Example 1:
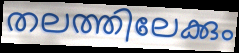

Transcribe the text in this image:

തലത്തിലേക്കും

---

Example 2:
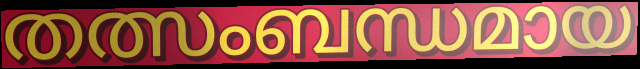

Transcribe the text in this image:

തത്സംബന്ധമായ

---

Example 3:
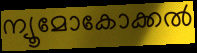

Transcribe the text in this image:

ന്യൂമോകോക്കൽ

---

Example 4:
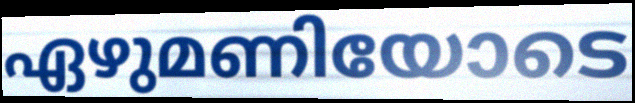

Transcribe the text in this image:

ഏഴുമണിയോടെ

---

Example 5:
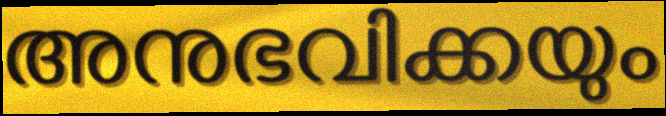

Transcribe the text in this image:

അനുഭവിക്കയും